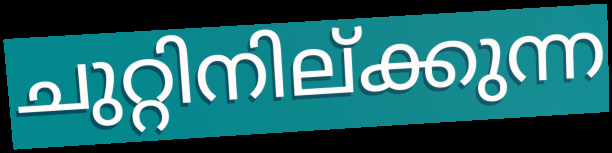
ചുറ്റിനില്ക്കുന്ന